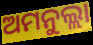
ଅମନୁଲ୍ଲା